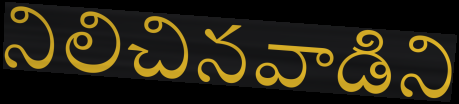
నిలిచినవాడిని